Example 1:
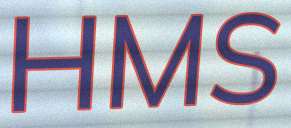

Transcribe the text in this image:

HMS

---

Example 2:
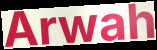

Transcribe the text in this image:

Arwah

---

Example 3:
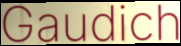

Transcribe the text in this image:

Gaudich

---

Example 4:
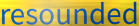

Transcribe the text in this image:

resounded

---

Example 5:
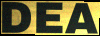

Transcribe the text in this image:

DEA